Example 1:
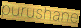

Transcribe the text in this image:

purushane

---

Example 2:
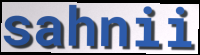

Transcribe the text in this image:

sahnii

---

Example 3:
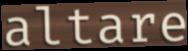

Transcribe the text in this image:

altare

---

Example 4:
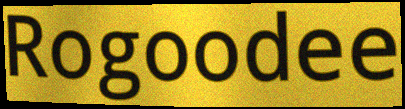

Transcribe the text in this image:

Rogoodee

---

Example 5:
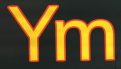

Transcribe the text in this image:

Ym